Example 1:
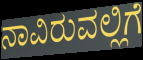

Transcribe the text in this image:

ನಾವಿರುವಲ್ಲಿಗೆ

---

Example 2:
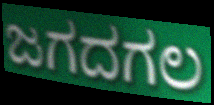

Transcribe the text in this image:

ಜಗದಗಲ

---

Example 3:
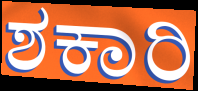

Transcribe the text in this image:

ಶಕಾರಿ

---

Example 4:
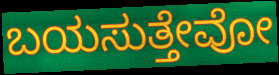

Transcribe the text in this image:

ಬಯಸುತ್ತೇವೋ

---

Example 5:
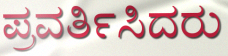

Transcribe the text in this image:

ಪ್ರವರ್ತಿಸಿದರು